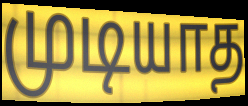
முடியாத